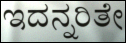
ಇದನ್ನರಿತೇ